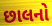
છાલનો